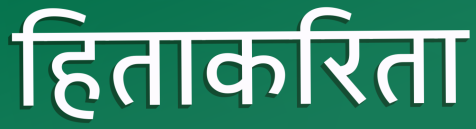
हिताकरिता